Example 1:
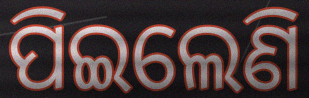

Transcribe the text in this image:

ପିଇଲେଣି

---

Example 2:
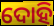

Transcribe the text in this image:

ଦୋହି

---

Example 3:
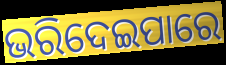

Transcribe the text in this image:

ଭରିଦେଇପାରେ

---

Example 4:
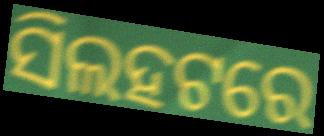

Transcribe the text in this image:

ସିଲହଟରେ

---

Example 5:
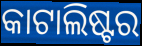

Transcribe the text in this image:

କାଟାଲିଷ୍ଟର